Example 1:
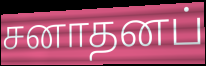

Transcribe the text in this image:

சனாதனப்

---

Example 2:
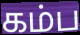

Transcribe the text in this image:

கம்ப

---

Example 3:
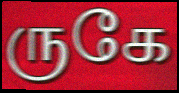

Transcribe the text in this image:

ருகே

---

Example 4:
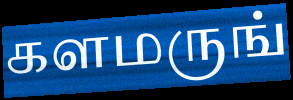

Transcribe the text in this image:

களமருங்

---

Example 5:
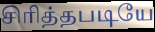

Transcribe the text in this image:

சிரித்தபடியே